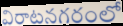
విరాటనగరంలో